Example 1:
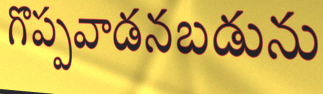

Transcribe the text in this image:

గొప్పవాడనబడును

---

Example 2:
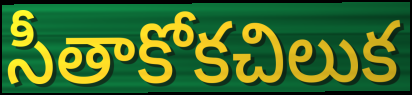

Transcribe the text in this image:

సీతాకోకచిలుక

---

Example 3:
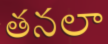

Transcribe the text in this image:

తనలా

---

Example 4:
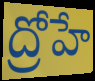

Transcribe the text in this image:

ద్రోహే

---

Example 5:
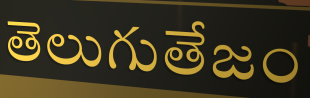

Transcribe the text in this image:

తెలుగుతేజం